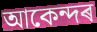
আকেন্দৰ